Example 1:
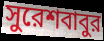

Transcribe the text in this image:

সুরেশবাবুর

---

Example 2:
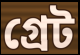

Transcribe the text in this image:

গ্রেট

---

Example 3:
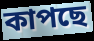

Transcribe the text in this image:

কাপছে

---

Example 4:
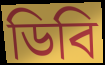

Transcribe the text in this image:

ডিবি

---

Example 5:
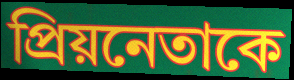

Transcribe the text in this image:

প্রিয়নেতাকে